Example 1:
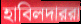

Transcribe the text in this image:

হাবিলদাররা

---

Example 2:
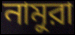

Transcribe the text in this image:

নামুরা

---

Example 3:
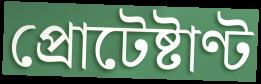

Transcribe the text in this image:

প্রোটেষ্টাণ্ট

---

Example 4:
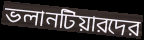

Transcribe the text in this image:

ভলানটিয়ারদের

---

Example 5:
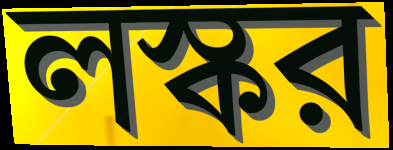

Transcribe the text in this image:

লস্কর